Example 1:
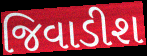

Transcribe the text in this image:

જિવાડીશ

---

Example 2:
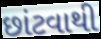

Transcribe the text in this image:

છાંટવાથી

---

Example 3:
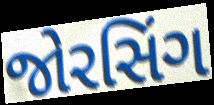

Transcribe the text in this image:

જોરસિંગ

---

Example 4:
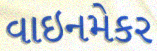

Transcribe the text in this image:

વાઇનમેકર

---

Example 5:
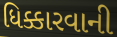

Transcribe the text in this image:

ધિક્કારવાની